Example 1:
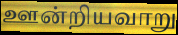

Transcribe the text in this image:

ஊன்றியவாறு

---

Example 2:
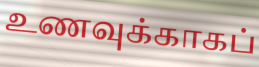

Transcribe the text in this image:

உணவுக்காகப்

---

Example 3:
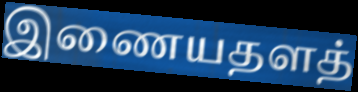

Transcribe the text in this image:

இணையதளத்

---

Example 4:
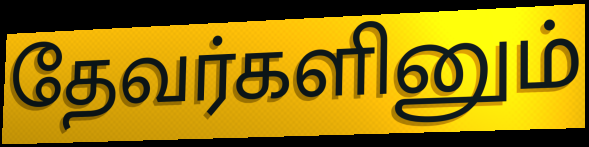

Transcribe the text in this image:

தேவர்களினும்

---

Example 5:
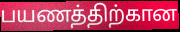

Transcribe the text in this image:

பயணத்திற்கான